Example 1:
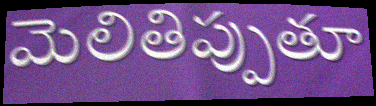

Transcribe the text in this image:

మెలితిప్పుతూ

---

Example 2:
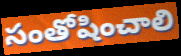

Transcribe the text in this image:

సంతోషించాలి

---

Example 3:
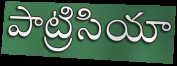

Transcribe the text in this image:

పాట్రిసియా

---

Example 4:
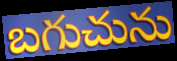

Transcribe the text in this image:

బగుచును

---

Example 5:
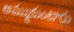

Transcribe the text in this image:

అమ్ముకుంటారు